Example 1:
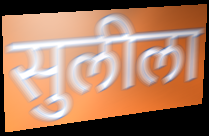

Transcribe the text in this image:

सुलीला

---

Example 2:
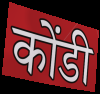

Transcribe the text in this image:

कोंडी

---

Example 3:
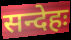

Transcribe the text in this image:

सन्देहः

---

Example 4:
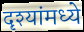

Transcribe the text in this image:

दृश्यांमध्ये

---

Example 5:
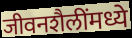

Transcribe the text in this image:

जीवनशैलींमध्ये